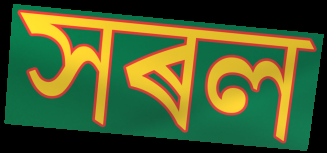
সৰল